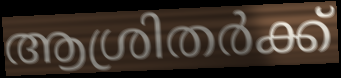
ആശ്രിതർക്ക്